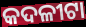
କଦଳୀଟା